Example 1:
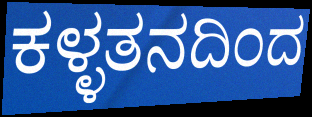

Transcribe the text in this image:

ಕಳ್ಳತನದಿಂದ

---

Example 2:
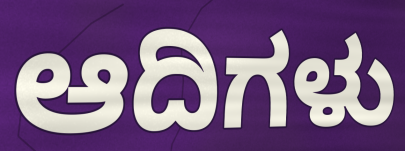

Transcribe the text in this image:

ಆದಿಗಳು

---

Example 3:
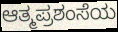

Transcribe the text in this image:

ಆತ್ಮಪ್ರಶಂಸೆಯ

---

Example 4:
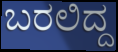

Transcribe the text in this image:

ಬರಲಿದ್ದ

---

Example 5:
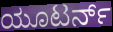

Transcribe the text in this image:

ಯೂಟರ್ನ್